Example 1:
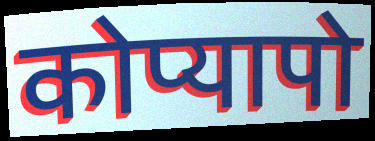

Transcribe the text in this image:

कोप्यापो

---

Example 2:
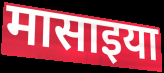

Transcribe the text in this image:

मासाइया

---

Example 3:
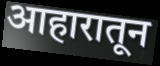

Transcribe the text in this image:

आहारातून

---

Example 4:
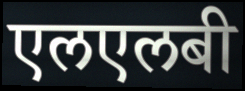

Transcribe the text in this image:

एलएलबी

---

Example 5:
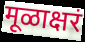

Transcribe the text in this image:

मूळाक्षरं